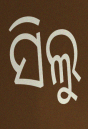
ସିଲୁ